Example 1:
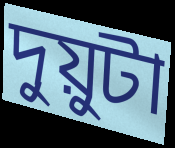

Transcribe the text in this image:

দুয়ুটা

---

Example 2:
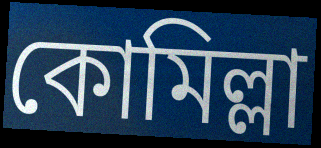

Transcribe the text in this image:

কোমিল্লা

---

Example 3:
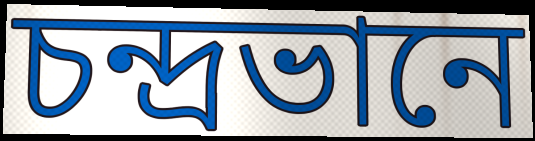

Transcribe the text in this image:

চন্দ্ৰভানে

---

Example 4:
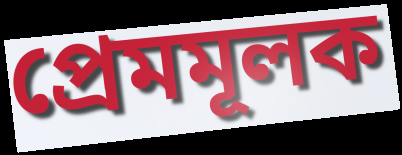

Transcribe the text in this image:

প্ৰেমমূলক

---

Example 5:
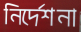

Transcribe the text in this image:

নিৰ্দেশনা